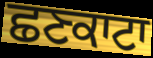
ਛਣਕਾਟਾ